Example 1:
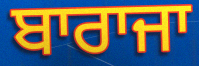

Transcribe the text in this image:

ਬਾਰਾਜਾ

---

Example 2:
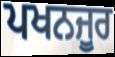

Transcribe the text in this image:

ਪਖਨਜੂਰ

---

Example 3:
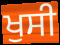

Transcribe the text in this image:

ਖੁਸੀ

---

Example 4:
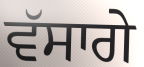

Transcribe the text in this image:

ਵੱਸਾਗੇ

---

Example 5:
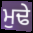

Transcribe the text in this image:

ਮੁਢੇ